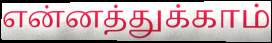
என்னத்துக்காம்